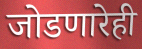
जोडणारेही